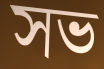
সভ